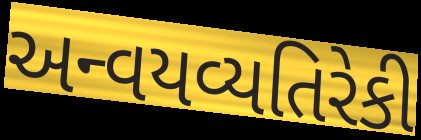
અન્વયવ્યતિરેકી